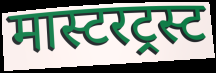
मास्टरट्रस्ट